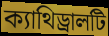
ক্যাথিড্রালটি